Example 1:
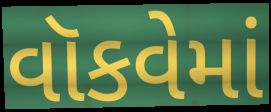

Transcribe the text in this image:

વૉકવેમાં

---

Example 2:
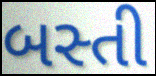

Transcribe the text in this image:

બસ્તી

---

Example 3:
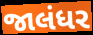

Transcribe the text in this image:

જાલંધર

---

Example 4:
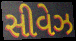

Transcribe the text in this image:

સીવેઝ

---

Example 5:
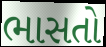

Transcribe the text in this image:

ભાસતો